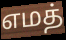
எமத்